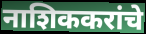
नाशिककरांचे